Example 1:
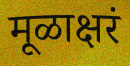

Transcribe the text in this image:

मूळाक्षरं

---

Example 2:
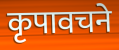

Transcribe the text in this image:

कृपावचने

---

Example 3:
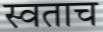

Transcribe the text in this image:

स्वताच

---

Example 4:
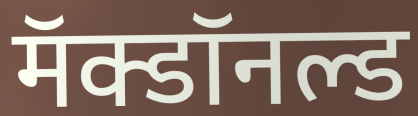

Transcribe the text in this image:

मॅक्डॉनल्ड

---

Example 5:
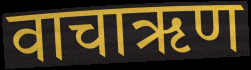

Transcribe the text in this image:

वाचाऋण